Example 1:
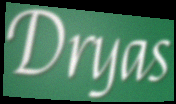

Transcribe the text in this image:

Dryas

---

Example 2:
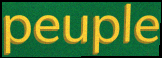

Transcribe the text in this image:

peuple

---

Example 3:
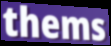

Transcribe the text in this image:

thems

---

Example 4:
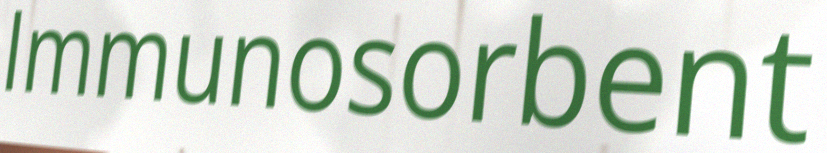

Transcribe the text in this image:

Immunosorbent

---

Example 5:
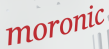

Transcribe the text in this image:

moronic